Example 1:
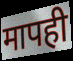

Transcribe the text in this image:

मापही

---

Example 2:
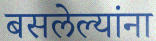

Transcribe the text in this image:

बसलेल्यांना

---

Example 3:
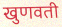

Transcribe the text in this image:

खुणवती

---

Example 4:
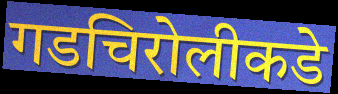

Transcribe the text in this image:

गडचिरोलीकडे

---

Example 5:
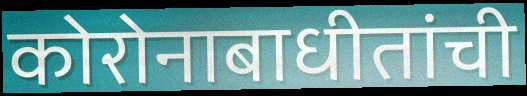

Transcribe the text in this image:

कोरोनाबाधीतांची